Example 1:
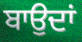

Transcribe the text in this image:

ਬਾਉਦਾਂ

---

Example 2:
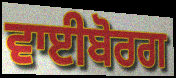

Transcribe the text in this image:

ਵਾਈਬੋਰਗ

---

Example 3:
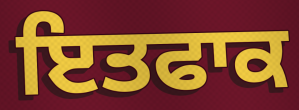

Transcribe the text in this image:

ਇਤਫਾਕ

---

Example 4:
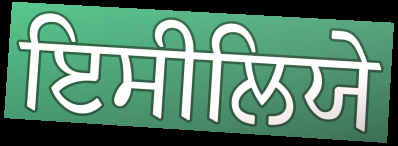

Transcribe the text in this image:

ਇਸੀਲਿਯੇ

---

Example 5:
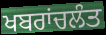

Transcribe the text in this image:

ਖਬਰਾਂਚਲੰਤ